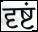
दृष्टं